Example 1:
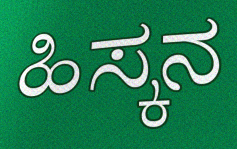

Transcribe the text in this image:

ಹಿಸ್ಕನ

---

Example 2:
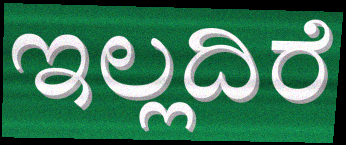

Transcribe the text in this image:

ಇಲ್ಲದಿರೆ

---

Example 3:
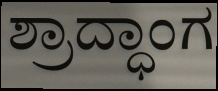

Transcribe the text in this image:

ಶ್ರಾದ್ಧಾಂಗ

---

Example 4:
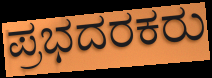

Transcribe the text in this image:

ಪ್ರಭದರಕರು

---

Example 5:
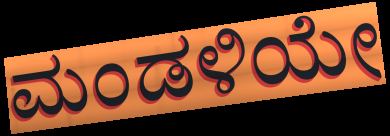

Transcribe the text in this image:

ಮಂಡಳಿಯೇ